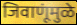
जिवाणूंमुळे